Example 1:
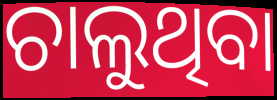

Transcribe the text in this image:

ଚାଲୁଥିବା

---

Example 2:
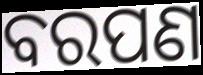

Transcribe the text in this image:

ବରପଣ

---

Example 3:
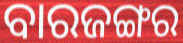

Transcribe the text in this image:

ବାରଜଙ୍ଗର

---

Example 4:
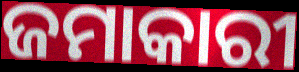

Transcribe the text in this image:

ଜମାକାରୀ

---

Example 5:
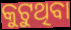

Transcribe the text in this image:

କୁଟୁଥିବା